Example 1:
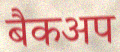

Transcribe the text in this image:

बैकअप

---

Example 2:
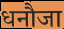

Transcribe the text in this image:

धनौजा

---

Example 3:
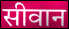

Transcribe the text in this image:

सीवान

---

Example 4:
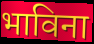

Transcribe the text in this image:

भाविना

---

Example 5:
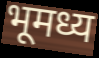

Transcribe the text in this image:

भूमध्य